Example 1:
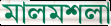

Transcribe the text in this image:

মালমশলা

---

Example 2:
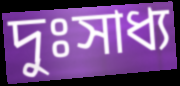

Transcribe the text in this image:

দুঃসাধ্য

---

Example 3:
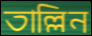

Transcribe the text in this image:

তাল্লিন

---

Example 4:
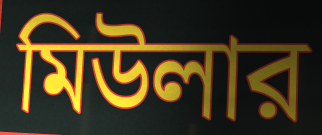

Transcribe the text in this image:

মিউলার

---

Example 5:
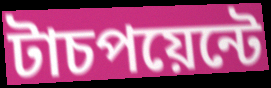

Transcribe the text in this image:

টাচপয়েন্টে